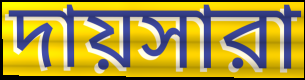
দায়সারা